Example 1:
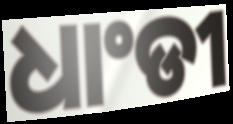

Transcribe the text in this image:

ଧାଂଡୀ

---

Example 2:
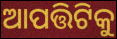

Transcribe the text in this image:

ଆପତ୍ତିଟିକୁ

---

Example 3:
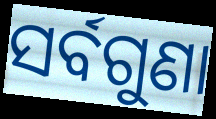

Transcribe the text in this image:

ସର୍ବଗୁଣା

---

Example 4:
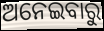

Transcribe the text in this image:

ଅନେଇବାରୁ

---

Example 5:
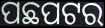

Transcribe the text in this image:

ପଛପଟର